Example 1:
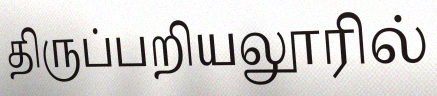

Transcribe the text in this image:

திருப்பறியலூரில்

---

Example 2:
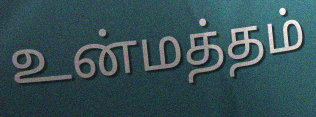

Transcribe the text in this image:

உன்மத்தம்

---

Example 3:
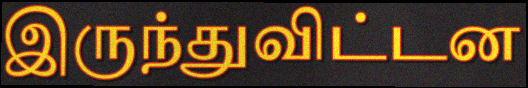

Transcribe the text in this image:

இருந்துவிட்டன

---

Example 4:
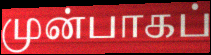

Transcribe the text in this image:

முன்பாகப்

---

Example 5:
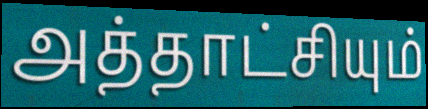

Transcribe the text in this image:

அத்தாட்சியும்